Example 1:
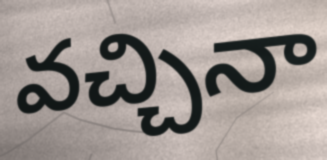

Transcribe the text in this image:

వచ్చినా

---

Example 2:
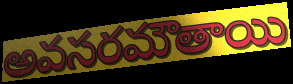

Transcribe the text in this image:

అవసరమౌతాయి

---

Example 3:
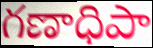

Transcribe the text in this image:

గణాధిపా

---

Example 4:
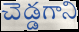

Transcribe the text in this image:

చెడ్డగాని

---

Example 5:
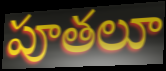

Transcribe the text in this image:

పూతలూ